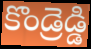
కొండ్రెడ్డి